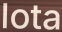
lota